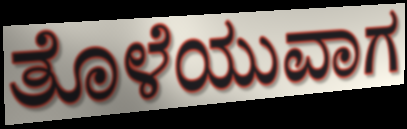
ತೊಳೆಯುವಾಗ